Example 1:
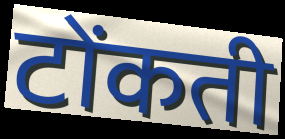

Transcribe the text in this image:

टोंकती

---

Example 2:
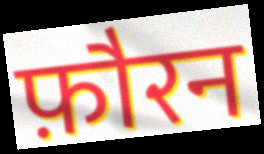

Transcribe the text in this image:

फ़ौरन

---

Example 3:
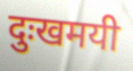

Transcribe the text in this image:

दुःखमयी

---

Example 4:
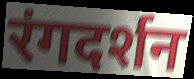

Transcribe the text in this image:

रंगदर्शन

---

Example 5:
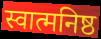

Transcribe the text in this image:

स्वात्मनिष्ठ